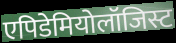
एपिडेमियोलॉजिस्ट